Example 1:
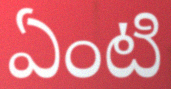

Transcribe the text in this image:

ఏంటి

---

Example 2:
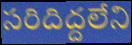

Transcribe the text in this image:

సరిదిద్దలేని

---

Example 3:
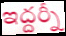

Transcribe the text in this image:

ఇద్దర్నీ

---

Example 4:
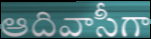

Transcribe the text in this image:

ఆదివాసీగా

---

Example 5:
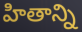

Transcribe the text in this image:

హితాన్ని